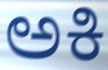
ಅಕಿ